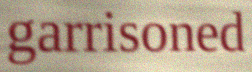
garrisoned